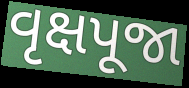
વૃક્ષપૂજા